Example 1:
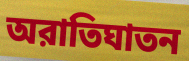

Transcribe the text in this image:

অরাতিঘাতন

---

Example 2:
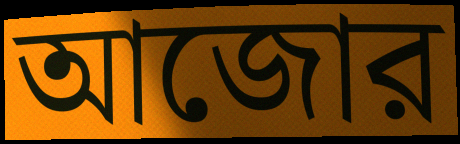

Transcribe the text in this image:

আজোর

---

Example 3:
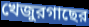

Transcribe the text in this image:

খেজুরগাছের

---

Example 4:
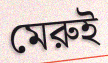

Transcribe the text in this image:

মেরুই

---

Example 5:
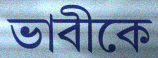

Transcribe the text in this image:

ভাবীকে